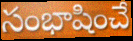
సంభాషించే